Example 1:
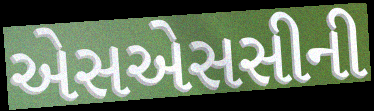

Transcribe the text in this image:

એસએસસીની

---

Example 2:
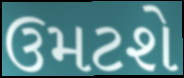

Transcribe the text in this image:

ઉમટશે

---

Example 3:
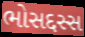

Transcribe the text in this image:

ભોસદ્દસ્સ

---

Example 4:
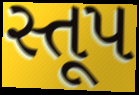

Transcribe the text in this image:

સ્તૂપ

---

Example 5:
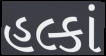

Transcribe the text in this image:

હલ્કાં